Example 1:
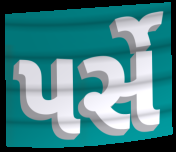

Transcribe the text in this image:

પર્સે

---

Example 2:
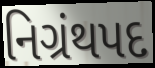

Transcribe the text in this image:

નિગ્રંથપદ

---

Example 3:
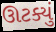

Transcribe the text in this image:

ઊટક્યું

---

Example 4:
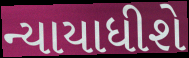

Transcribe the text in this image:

ન્યાયાધીશે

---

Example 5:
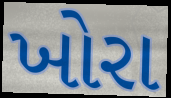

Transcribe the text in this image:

ખોરા